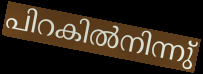
പിറകിൽനിന്നു്